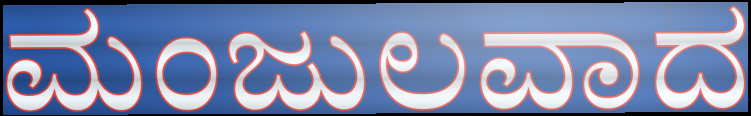
ಮಂಜುಲವಾದ